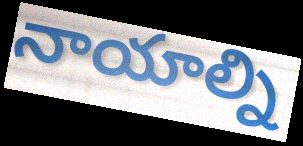
నాయాల్ని